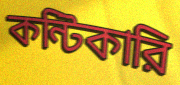
কন্টিকারি